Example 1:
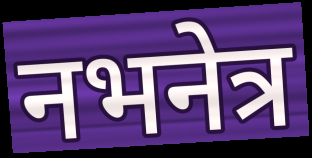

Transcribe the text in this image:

नभनेत्र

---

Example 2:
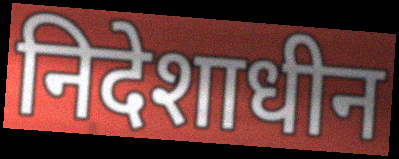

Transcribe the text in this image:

निदेशाधीन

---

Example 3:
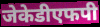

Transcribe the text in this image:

जेकेडीएफपी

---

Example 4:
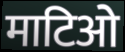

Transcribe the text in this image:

माटिओ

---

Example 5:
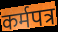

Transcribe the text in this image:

कर्मपत्र